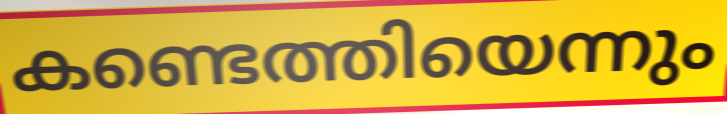
കണ്ടെത്തിയെന്നും